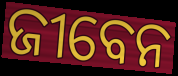
ଜୀବେନ